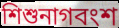
শিশুনাগবংশ